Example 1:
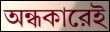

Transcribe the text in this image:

অন্ধকারেই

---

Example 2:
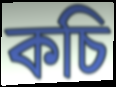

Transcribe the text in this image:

কচি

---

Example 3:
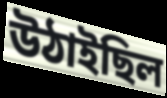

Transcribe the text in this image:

উঠাইছিল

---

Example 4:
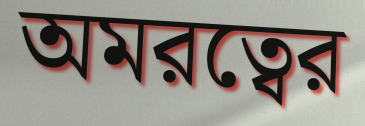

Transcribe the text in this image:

অমরত্বের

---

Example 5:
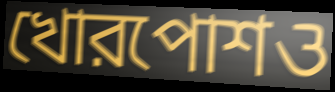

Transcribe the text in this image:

খোরপোশও